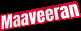
Maaveeran